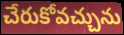
చేరుకోవచ్చును